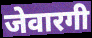
जेवारगी